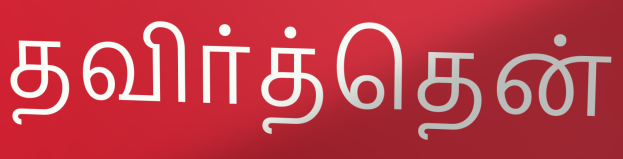
தவிர்த்தென்